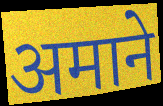
अमाने